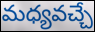
మధ్యవచ్చే